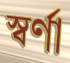
স্বর্ণা